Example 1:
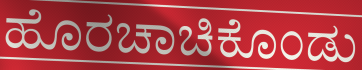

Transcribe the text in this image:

ಹೊರಚಾಚಿಕೊಂಡು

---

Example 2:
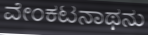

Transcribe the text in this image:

ವೇಂಕಟನಾಥನು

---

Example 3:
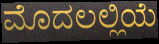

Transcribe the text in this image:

ಮೊದಲಲ್ಲಿಯೆ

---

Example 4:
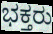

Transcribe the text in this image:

ಭಕ್ತರು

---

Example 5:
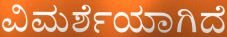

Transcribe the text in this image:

ವಿಮರ್ಶೆಯಾಗಿದೆ